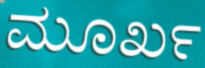
ಮೂರ್ಖ